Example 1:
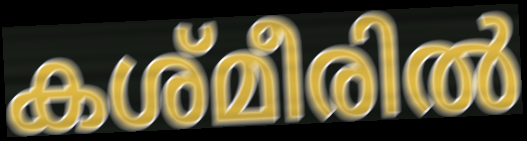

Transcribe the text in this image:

കശ്മീരിൽ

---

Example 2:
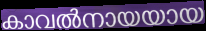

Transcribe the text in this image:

കാവൽനായയായ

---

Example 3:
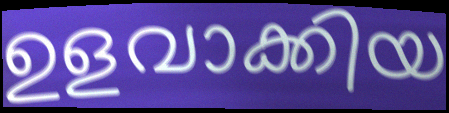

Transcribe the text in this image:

ഉളവാക്കിയ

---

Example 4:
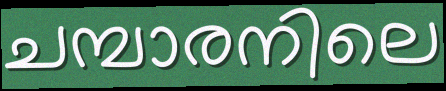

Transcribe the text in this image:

ചമ്പാരനിലെ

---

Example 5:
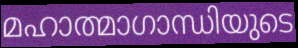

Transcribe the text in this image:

മഹാത്മാഗാന്ധിയുടെ